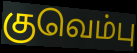
குவெம்பு